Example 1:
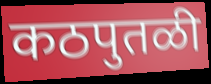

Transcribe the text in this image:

कठपुतळी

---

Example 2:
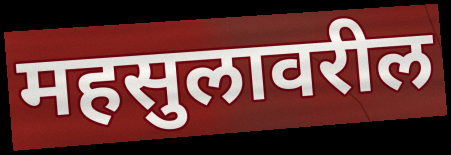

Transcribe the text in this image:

महसुलावरील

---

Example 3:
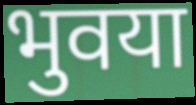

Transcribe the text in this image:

भुवया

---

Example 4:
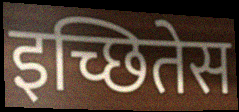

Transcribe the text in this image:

इच्छितेस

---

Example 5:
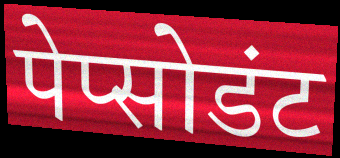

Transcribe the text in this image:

पेप्सोडंट